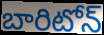
బారిటోన్